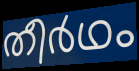
തീർഥം